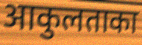
आकुलताका